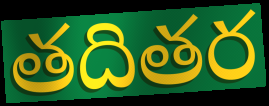
తదితర